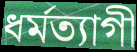
ধর্মত্যাগী